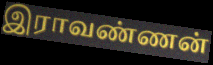
இராவண்ணன்